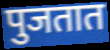
पुजतात